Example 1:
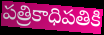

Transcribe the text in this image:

పత్రికాధిపతికి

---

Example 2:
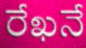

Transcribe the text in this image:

రేఖనే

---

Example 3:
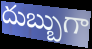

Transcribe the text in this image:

దుబ్బుగా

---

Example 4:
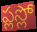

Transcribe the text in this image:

ప్లస్లో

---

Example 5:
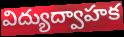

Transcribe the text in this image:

విద్యుద్వాహక